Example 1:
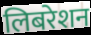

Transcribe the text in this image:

लिबरेशन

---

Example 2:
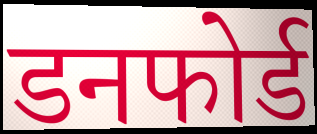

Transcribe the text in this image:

डनफोर्ड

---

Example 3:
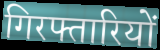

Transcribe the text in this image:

गिरफ्तारियों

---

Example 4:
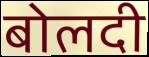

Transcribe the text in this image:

बोलदी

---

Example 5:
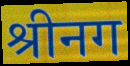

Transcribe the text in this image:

श्रीनग